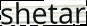
shetar